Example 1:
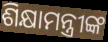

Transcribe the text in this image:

ଶିକ୍ଷାମନ୍ତ୍ରୀଙ୍କ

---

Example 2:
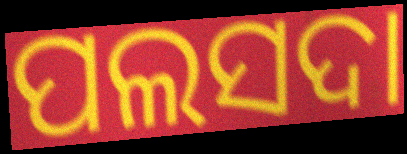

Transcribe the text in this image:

ପଲସଦା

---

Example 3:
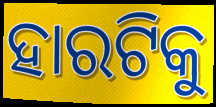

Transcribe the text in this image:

ହାରଟିକୁ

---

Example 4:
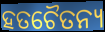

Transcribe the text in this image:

ହତଚୈତନ୍ୟ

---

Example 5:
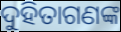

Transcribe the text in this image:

ଦୁହିତାଗଣଙ୍କ